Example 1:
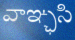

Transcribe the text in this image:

వాఞ్ఛసి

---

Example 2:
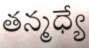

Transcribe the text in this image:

తన్మధ్యే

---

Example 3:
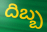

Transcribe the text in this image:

దిబ్బ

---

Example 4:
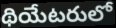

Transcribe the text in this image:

థియేటరులో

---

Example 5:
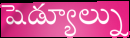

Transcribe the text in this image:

షెడ్యూల్ను